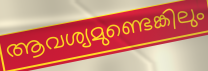
ആവശ്യമുണ്ടെങ്കിലും